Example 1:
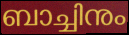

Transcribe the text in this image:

ബാച്ചിനും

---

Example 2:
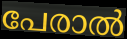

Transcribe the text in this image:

പേരാൽ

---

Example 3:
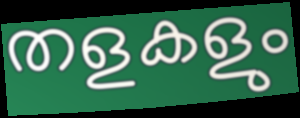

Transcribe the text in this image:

തളകളും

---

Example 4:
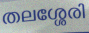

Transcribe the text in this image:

തലശ്ശേരി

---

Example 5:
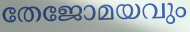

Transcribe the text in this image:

തേജോമയവും